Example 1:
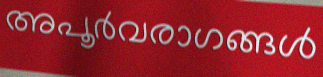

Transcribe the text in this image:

അപൂർവരാഗങ്ങൾ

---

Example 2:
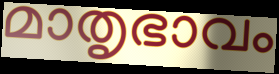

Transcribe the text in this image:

മാതൃഭാവം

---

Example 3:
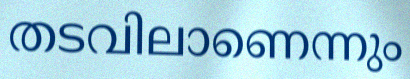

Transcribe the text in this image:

തടവിലാണെന്നും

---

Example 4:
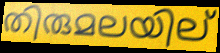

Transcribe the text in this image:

തിരുമലയില്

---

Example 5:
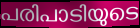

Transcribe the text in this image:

പരിപാടിയുടെ